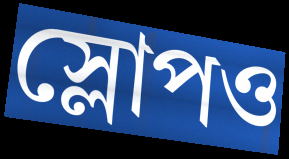
স্লোপও